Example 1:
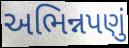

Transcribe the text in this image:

અભિન્નપણું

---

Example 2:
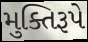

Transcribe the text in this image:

મુક્તિરૂપે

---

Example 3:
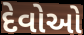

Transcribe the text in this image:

દેવોઓ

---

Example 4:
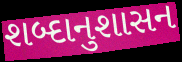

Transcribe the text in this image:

શબ્દાનુશાસન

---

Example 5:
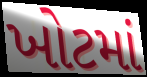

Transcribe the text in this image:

ખોટમાં